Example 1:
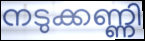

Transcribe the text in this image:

നടുക്കണ്ണി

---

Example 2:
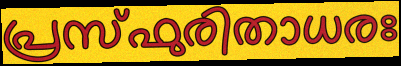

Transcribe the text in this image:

പ്രസ്ഫുരിതാധരഃ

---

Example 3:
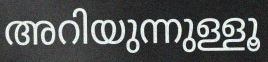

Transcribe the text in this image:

അറിയുന്നുള്ളൂ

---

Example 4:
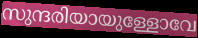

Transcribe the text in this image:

സുന്ദരിയായുള്ളോവേ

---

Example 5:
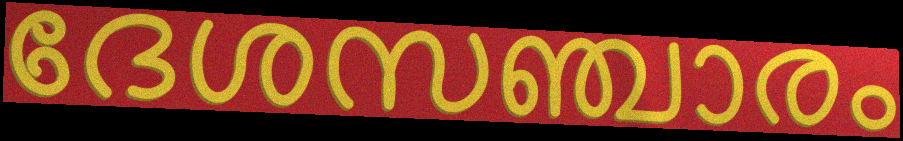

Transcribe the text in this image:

ദേശസഞ്ചാരം